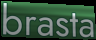
brasta